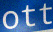
ott